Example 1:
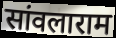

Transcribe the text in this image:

सांवलाराम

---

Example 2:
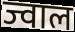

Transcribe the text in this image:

ज्वाल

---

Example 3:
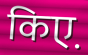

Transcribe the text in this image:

किए़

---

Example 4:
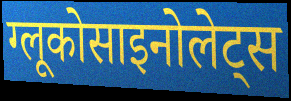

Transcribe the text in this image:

ग्लूकोसाइनोलेट्स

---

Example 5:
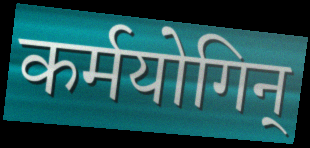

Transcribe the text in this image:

कर्मयोगिन्